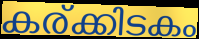
കര്ക്കിടകം